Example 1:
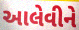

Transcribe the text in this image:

આલેવીને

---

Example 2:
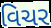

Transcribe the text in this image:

વિચર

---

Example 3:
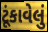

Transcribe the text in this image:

ટૂંકાવેલું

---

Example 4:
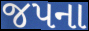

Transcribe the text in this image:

જપના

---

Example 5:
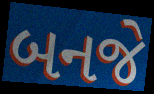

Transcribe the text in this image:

બનજે